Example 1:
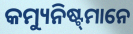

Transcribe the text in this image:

କମ୍ୟୁନିଷ୍ଟ୍‌ମାନେ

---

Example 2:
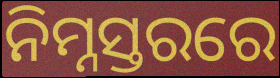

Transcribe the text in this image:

ନିମ୍ନସ୍ତରରେ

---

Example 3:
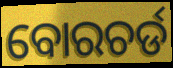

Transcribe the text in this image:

ବୋରଚର୍ଡ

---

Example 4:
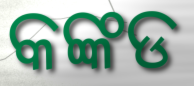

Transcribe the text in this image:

କଙ୍କଡ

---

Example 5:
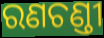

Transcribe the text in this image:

ରଣଚଣ୍ଡୀ